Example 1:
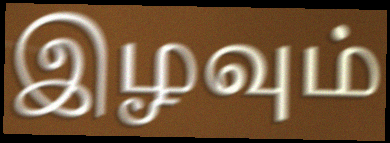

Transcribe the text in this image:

இழவும்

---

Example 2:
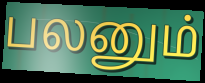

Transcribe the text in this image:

பலனும்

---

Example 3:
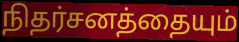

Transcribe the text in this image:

நிதர்சனத்தையும்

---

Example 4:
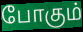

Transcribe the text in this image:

போகும்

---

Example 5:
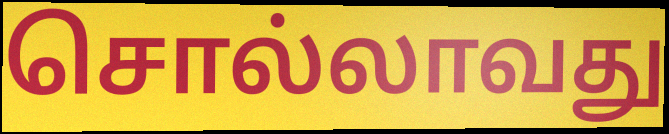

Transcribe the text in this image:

சொல்லாவது